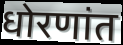
धोरणांत